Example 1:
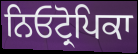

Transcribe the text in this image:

ਨਿਓਟ੍ਰੋਪਿਕਾ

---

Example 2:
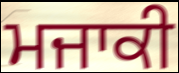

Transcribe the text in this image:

ਮਜਾਕੀ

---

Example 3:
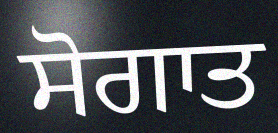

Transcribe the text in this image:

ਸੋਗਾਤ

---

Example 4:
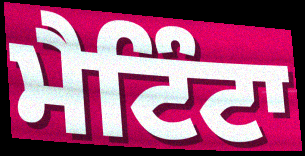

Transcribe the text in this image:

ਮੈਟਿੰਟਾ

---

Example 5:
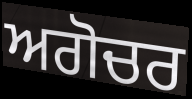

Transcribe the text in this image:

ਅਗੋਚਰ